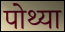
पोथ्या